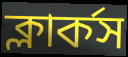
ক্লার্কস